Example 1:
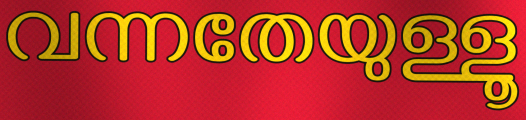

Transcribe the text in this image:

വന്നതേയുള്ളൂ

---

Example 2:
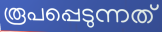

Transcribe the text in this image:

രൂപപ്പെടുന്നത്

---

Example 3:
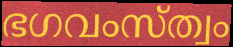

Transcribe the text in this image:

ഭഗവംസ്ത്വം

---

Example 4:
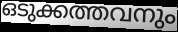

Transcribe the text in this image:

ഒടുക്കത്തവനും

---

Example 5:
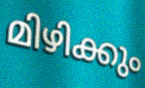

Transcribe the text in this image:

മിഴിക്കും